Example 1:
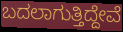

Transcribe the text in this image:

ಬದಲಾಗುತ್ತಿದ್ದೇವೆ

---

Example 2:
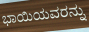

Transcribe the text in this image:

ಭಾಯಿಯವರನ್ನು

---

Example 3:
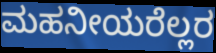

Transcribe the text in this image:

ಮಹನೀಯರೆಲ್ಲರ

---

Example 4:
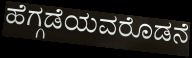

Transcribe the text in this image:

ಹೆಗ್ಗಡೆಯವರೊಡನೆ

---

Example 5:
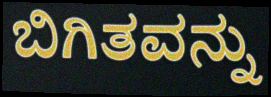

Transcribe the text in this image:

ಬಿಗಿತವನ್ನು